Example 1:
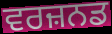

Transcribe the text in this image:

ਵਰਜ਼ਨਡ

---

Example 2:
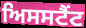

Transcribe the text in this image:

ਅਿਸਸਟੈਂਟ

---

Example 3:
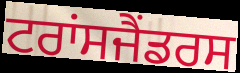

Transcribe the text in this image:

ਟਰਾਂਸਜੈਂਡਰਸ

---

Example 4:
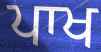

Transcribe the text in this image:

ਪਾਖ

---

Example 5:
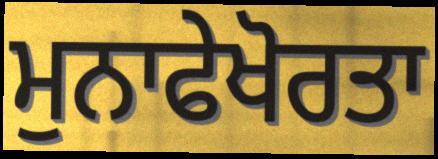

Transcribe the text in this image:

ਮੁਨਾਫੇਖੋਰਤਾ